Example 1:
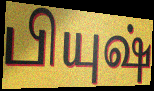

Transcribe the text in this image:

பியுஷ்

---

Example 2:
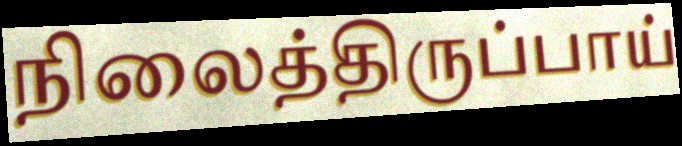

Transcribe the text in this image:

நிலைத்திருப்பாய்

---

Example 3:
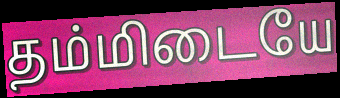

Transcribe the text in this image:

தம்மிடையே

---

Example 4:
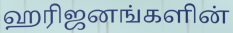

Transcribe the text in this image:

ஹரிஜனங்களின்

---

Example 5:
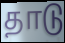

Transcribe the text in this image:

தாடு